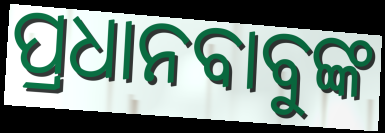
ପ୍ରଧାନବାବୁଙ୍କ